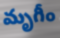
మృగీం